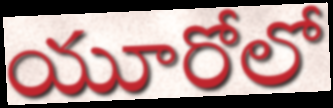
యూరోలో